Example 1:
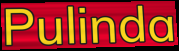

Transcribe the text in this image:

Pulinda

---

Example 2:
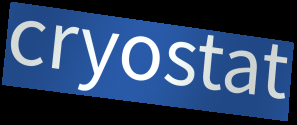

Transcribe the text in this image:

cryostat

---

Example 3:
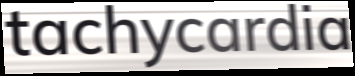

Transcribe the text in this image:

tachycardia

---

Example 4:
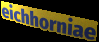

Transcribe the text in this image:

eichhorniae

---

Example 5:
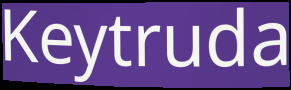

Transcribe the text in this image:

Keytruda